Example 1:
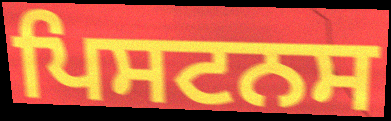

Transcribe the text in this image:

ਪਿਸਟਨਸ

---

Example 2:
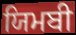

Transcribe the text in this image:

ਯਿਮਬੀ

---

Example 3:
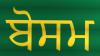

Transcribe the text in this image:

ਬੋਸਮ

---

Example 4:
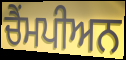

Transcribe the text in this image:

ਚੈਂਮਪੀਅਨ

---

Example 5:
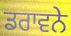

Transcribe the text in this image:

ਡਰਾਵਨੇ